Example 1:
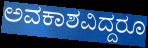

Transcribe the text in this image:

ಅವಕಾಶವಿದ್ದರೂ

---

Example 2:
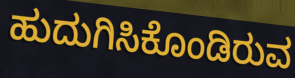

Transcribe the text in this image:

ಹುದುಗಿಸಿಕೊಂಡಿರುವ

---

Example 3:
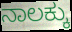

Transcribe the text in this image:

ನಾಲಕ್ಕು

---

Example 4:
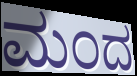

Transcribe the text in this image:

ಮಂದ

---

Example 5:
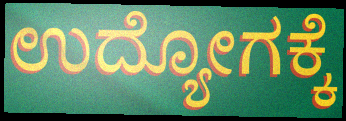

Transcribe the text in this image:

ಉದ್ಯೋಗಕ್ಕೆ